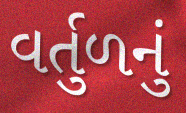
વર્તુળનું